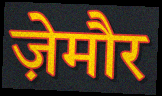
ज़ेमौर